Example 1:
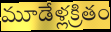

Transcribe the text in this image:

మూడేళ్లక్రితం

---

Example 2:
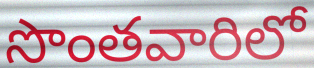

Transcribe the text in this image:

సొంతవారిలో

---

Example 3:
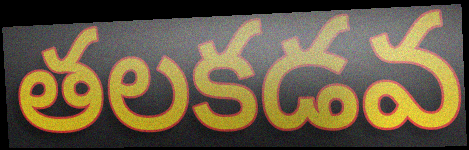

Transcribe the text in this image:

తలకడవ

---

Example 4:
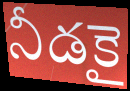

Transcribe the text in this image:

నీడకై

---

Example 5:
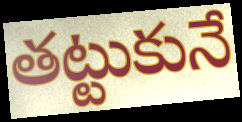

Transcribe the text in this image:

తట్టుకునే